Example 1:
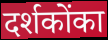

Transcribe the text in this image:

दर्शकोंका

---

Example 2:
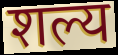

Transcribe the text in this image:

शल्य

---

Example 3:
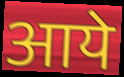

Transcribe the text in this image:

आये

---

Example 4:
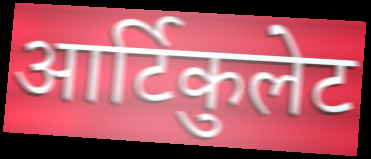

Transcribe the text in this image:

आर्टिकुलेट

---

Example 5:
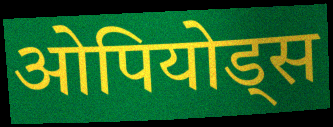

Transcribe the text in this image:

ओपियोड्स